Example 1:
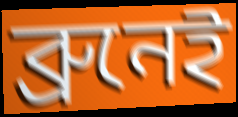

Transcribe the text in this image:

ব্রুনেই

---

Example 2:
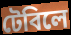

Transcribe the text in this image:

টেবিলে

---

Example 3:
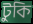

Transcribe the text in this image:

টুকি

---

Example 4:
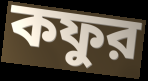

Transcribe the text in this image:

কফুর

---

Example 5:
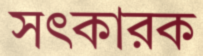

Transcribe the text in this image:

সৎকারক